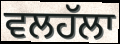
ਵਲਹੱਲਾ